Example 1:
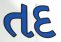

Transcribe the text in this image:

તદ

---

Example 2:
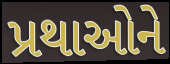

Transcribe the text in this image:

પ્રથાઓને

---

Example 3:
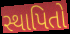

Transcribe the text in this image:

સ્થાપિતો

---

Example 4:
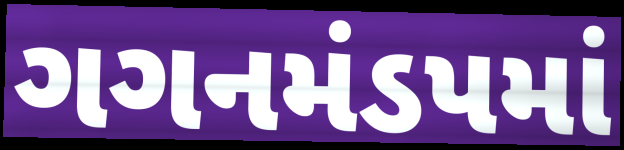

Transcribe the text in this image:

ગગનમંડપમાં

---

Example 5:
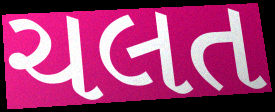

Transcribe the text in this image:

ચલત